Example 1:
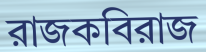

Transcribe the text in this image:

রাজকবিরাজ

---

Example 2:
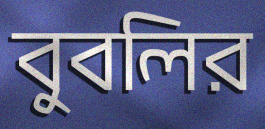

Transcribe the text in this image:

বুবলির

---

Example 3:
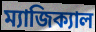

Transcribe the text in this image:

ম্যাজিক্যাল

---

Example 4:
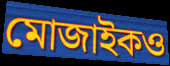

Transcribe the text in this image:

মোজাইকও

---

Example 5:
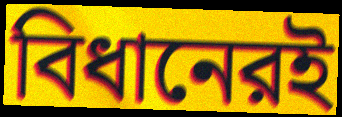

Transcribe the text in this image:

বিধানেরই